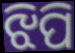
ଝିପି